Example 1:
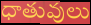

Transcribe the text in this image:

ధాతువులు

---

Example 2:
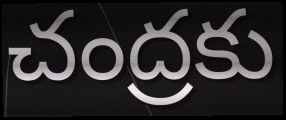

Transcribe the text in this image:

చంద్రకు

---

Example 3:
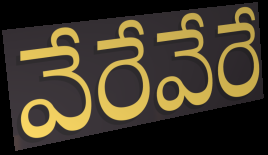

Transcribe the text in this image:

వేరేవేరే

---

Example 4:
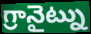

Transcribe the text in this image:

గ్రానైట్ను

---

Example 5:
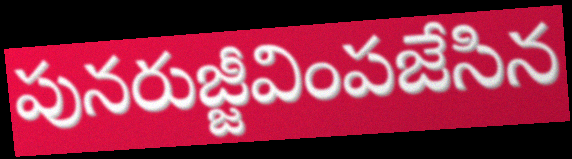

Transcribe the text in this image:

పునరుజ్జీవింపజేసిన